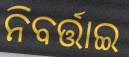
ନିବର୍ତ୍ତାଇ